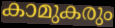
കാമുകരും